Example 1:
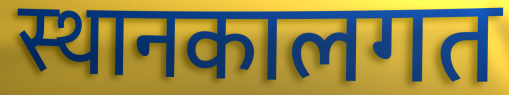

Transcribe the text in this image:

स्थानकालगत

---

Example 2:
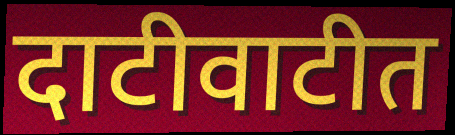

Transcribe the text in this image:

दाटीवाटीत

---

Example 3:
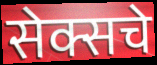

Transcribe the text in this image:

सेक्सचे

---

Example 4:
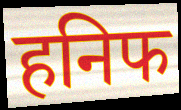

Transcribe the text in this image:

हनिफ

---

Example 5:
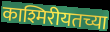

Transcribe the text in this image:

काश्मिरीयतच्या